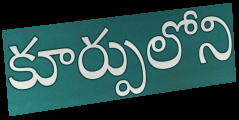
కూర్పులోని